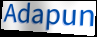
Adapun